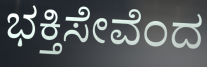
ಭಕ್ತಿಸೇವೆಂದ